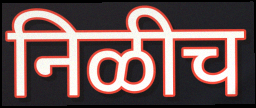
निळीच